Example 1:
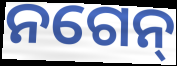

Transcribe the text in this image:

ନଗେନ୍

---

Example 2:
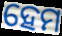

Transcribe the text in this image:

ହେମ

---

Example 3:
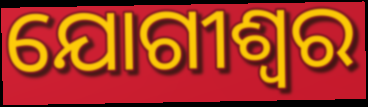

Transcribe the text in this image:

ଯୋଗୀଶ୍ୱର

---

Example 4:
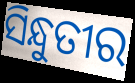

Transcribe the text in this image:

ସିନ୍ଧୁତୀର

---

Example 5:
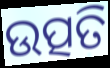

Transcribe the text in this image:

ଉତ୍ପତି